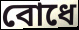
বোধে